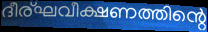
ദീര്ഘവീക്ഷണത്തിന്റെ